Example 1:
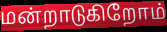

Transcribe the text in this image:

மன்றாடுகிறோம்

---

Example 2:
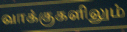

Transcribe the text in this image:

வாக்குகளிலும்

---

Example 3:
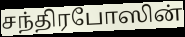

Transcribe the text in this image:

சந்திரபோஸின்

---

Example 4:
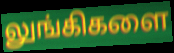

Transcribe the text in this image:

லுங்கிகளை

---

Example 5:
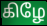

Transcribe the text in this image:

கிழே